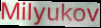
Milyukov